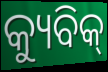
କ୍ୟୁବିକ୍